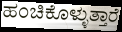
ಹಂಚಿಕೊಳ್ಳುತ್ತಾರೆ